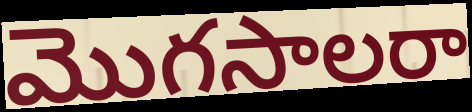
మొగసాలరా